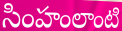
సింహంలాంటి